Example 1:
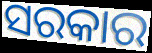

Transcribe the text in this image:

ସରକାର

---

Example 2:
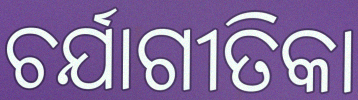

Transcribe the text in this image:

ଚର୍ଯାଗୀତିକା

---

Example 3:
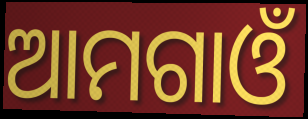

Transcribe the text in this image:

ଆମଗାଓଁ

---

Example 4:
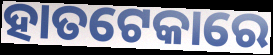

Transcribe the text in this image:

ହାତଟେକାରେ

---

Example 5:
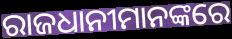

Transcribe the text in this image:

ରାଜଧାନୀମାନଙ୍କରେ